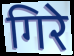
गिरे